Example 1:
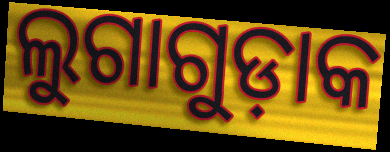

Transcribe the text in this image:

ଲୁଗାଗୁଡ଼ାକ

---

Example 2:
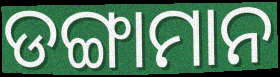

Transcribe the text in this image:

ଡଙ୍ଗାମାନ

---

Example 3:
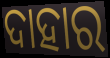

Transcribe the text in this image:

ଦାହାର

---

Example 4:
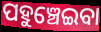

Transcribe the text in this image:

ପହୁଞ୍ଚେଇବା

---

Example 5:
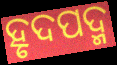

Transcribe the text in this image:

ହୃଦପଦ୍ମ